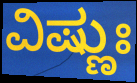
ವಿಷ್ಣುಃ